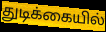
துடிக்கையில்